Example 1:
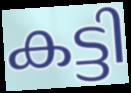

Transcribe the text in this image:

കട്ടി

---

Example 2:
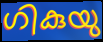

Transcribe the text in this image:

ഗികുയു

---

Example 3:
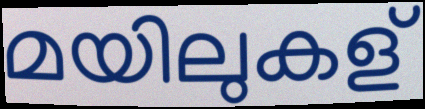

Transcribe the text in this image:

മയിലുകള്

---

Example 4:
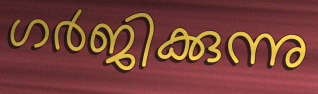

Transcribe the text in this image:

ഗർജിക്കുന്നു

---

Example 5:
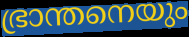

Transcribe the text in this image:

ഭ്രാന്തനെയും